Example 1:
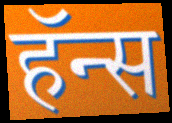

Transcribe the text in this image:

हॅन्स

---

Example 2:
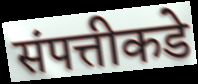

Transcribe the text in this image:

संपत्तीकडे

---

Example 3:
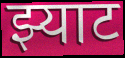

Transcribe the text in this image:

झ्याट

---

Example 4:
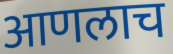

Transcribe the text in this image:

आणलाच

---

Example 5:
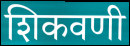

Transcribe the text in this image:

शिकवणी